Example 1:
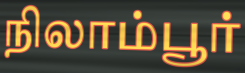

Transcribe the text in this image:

நிலாம்பூர்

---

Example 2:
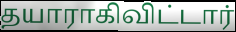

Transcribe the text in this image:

தயாராகிவிட்டார்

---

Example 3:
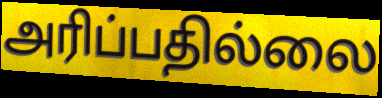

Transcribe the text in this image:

அரிப்பதில்லை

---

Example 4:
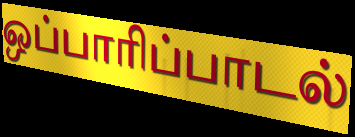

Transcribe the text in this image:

ஒப்பாரிப்பாடல்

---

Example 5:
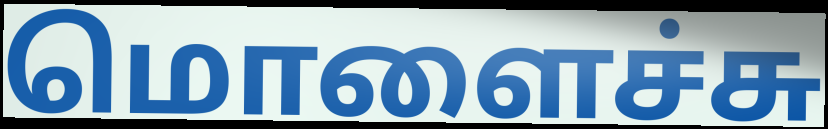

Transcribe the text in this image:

மொளைச்சு